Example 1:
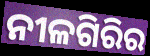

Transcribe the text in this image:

ନୀଳଗିରିର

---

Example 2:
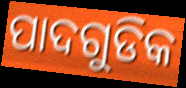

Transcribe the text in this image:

ପାଦଗୁଡିକ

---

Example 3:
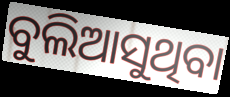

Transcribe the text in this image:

ବୁଲିଆସୁଥିବା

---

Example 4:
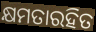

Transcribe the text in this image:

କ୍ଷମତାରହିତ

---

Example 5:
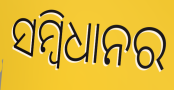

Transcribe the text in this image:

ସମ୍ବିଧାନର